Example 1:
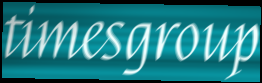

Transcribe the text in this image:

timesgroup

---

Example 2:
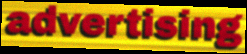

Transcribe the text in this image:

advertising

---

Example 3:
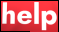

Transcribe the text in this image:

help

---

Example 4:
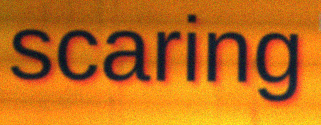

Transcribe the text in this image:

scaring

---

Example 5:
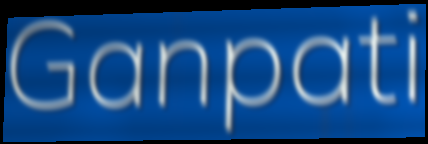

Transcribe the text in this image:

Ganpati